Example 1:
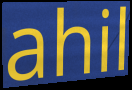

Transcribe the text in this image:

ahil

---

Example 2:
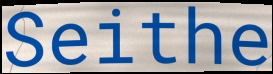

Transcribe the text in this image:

Seithe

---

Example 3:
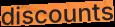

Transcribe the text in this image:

discounts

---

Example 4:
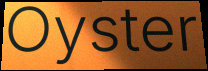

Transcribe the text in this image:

Oyster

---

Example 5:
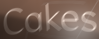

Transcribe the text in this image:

Cakes